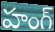
హంగ్